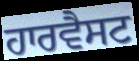
ਹਾਰਵੈਸਟ